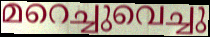
മറെച്ചുവെച്ചു